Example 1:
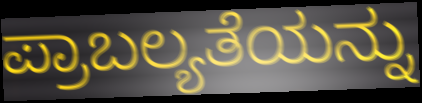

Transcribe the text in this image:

ಪ್ರಾಬಲ್ಯತೆಯನ್ನು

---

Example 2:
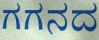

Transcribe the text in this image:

ಗಗನದ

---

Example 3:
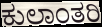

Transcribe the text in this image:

ಕುಲಾಂತರಿ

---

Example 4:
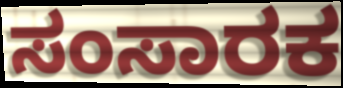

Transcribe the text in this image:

ಸಂಸಾರಕ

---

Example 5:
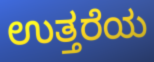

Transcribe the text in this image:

ಉತ್ತರೆಯ